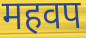
महवप